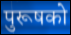
पुरूषको